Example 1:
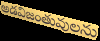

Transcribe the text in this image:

అడవిజంతువులను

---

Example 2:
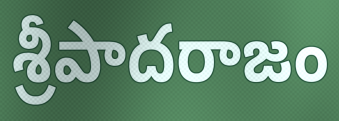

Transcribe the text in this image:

శ్రీపాదరాజం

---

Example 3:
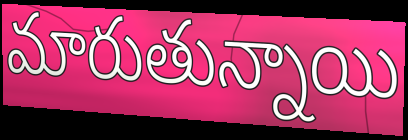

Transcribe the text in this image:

మారుతున్నాయి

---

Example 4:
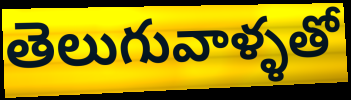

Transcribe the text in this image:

తెలుగువాళ్ళతో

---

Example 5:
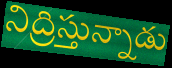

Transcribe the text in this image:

నిద్రిస్తున్నాడు